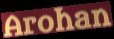
Arohan